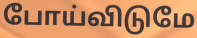
போய்விடுமே